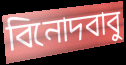
বিনোদবাবু